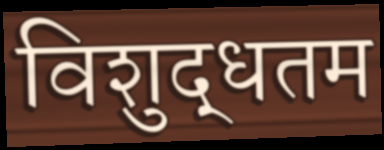
विशुद्धतम